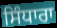
ਸਿੰਧਾਰਾ